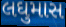
લઘુમાસ